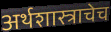
अर्थशास्त्राचेच